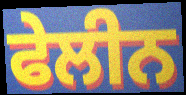
ਫੇਲੀਨ